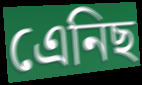
এেনিছ